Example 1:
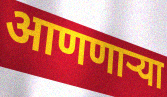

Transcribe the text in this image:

आणणाऱ्या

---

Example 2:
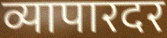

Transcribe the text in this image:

व्यापारदर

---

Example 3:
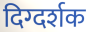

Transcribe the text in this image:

दिग्‍दर्शक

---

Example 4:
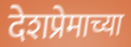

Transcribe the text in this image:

देशप्रेमाच्या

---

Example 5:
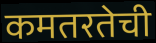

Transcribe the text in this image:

कमतरतेची